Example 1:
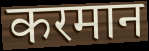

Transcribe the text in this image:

करमान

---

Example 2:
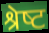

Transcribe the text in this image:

श्रेष्‍ट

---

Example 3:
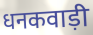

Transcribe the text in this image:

धनकवाड़ी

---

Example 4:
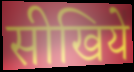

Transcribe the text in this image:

सीखिये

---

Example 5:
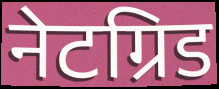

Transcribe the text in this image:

नेटग्रिड